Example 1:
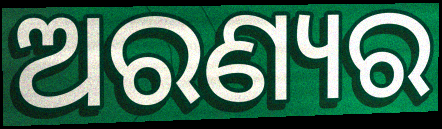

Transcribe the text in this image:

ଅରଣ୍ୟର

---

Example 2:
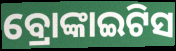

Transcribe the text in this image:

ବ୍ରୋଙ୍କାଇଟିସ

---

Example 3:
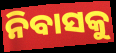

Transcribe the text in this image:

ନିବାସକୁ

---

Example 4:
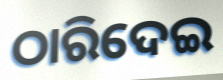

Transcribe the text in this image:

ଠାରିଦେଇ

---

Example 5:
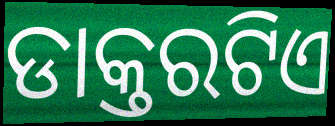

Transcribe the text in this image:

ଡାକ୍ତରଟିଏ